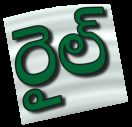
రైల్